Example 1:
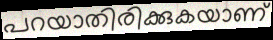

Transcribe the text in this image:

പറയാതിരിക്കുകയാണ്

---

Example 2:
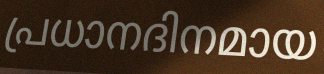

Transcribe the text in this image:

പ്രധാനദിനമായ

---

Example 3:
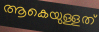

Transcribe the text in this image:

ആകെയുള്ളത്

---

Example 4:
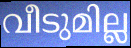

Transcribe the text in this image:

വീടുമില്ല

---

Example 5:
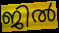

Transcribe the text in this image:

ജിൽ